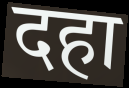
दहा